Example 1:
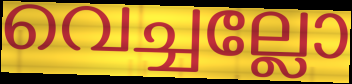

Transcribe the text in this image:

വെച്ചല്ലോ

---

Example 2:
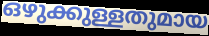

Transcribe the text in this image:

ഒഴുക്കുള്ളതുമായ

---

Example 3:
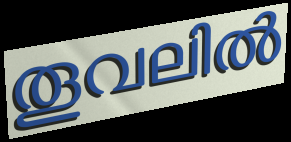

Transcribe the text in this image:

തൂവലിൽ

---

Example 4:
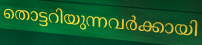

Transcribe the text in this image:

തൊട്ടറിയുന്നവർക്കായി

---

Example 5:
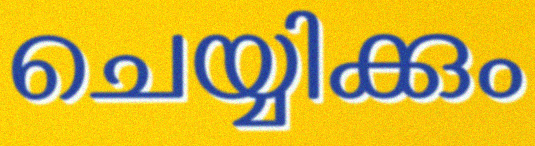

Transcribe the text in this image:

ചെയ്യിക്കും